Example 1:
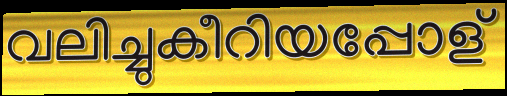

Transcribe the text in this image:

വലിച്ചുകീറിയപ്പോള്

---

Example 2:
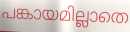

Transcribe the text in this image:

പങ്കായമില്ലാതെ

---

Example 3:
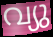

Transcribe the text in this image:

വ്യു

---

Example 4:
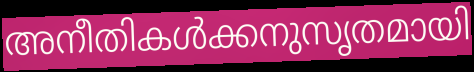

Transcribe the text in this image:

അനീതികൾക്കനുസൃതമായി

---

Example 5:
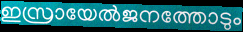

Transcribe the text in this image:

ഇസ്രായേൽജനത്തോടും